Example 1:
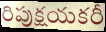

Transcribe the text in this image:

రిపుక్షయకరీ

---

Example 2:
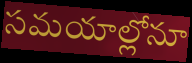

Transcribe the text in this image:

సమయాల్లోనూ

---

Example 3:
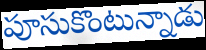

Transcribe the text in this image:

పూసుకొంటున్నాడు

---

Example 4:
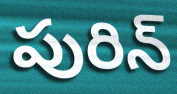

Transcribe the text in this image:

పురిన్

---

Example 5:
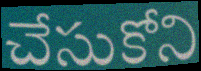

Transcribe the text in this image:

చేసుకోని